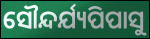
ସୌନ୍ଦର୍ଯ୍ୟପିପାସୁ